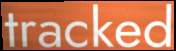
tracked